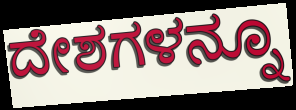
ದೇಶಗಳನ್ನೂ